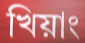
খিয়াং